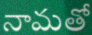
నామతో